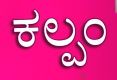
ಕಲ್ಪಂ